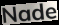
Nade